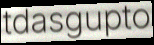
tdasgupto